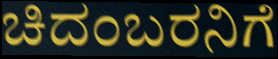
ಚಿದಂಬರನಿಗೆ